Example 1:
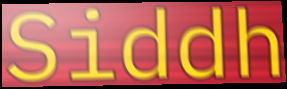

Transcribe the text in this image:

Siddh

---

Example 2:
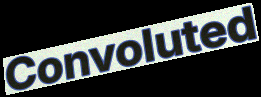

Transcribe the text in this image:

Convoluted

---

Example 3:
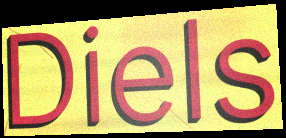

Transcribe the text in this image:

Diels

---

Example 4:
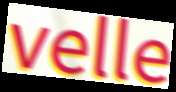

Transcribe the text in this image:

velle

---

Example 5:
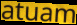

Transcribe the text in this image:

atuam